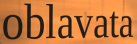
oblavata